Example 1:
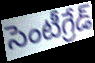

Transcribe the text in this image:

సెంటీగ్రేడ్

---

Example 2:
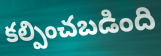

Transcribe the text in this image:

కల్పించబడింది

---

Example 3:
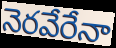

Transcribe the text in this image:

నెరవేరేనా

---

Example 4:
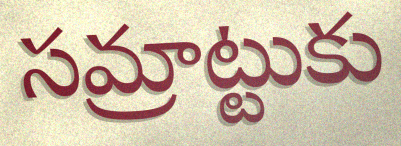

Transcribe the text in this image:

సమ్రాట్టుకు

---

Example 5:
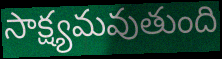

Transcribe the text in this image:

సాక్ష్యమవుతుంది